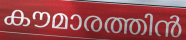
കൗമാരത്തിൻ